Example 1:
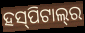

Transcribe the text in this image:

ହସ୍‍ପିଟାଲ୍‍ର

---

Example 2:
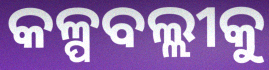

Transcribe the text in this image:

କଳ୍ପବଲ୍ଲୀକୁ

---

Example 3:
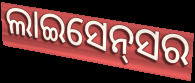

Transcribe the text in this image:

ଲାଇସେନ୍‌ସର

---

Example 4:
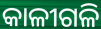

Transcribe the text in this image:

କାଳୀଗଳି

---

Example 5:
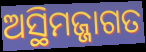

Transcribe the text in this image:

ଅସ୍ଥିମଜ୍ଜାଗତ